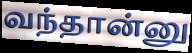
வந்தான்னு